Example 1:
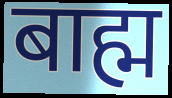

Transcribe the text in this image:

बाह्म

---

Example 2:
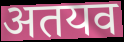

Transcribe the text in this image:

अतयव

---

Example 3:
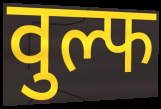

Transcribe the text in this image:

वुल्फ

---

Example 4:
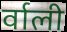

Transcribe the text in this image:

र्वाली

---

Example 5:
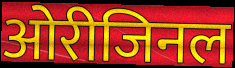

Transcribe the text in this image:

ओरीजिनल